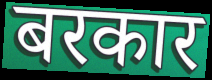
बरकार